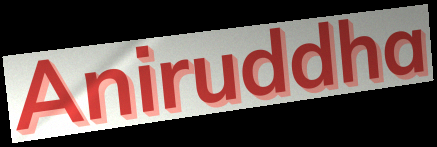
Aniruddha